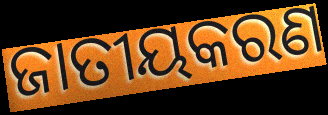
ଜାତୀୟକରଣ